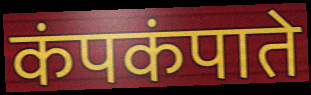
कंपकंपाते